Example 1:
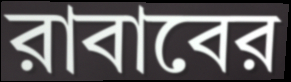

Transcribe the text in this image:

রাবাবের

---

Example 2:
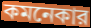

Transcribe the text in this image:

কমনেকার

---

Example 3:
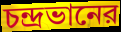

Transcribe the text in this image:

চন্দ্রভানের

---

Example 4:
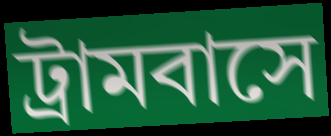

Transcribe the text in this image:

ট্রামবাসে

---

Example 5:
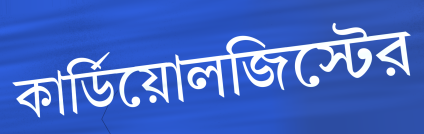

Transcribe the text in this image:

কার্ডিয়োলজিস্টের